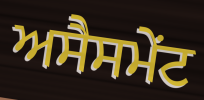
ਅਸੈਸਮੇਂਟ